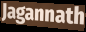
Jagannath